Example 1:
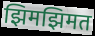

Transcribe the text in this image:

झिमझिमत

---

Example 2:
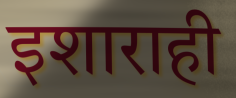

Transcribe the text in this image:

इशाराही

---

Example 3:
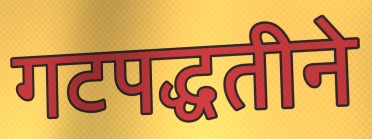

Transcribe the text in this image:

गटपद्धतीने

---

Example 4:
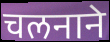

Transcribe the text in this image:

चलनाने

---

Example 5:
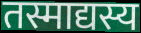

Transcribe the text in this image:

तस्माद्यस्य